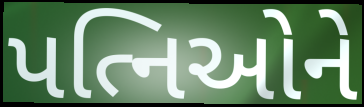
પત્નિઓને